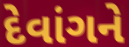
દેવાંગને